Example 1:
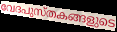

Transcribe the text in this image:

വേദപുസ്തകങ്ങളുടെ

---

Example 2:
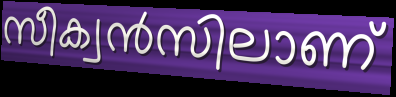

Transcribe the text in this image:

സീക്വൻസിലാണ്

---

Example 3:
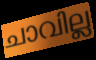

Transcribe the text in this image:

ചാവില്ല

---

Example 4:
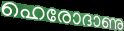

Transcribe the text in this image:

ഹെരോദാണു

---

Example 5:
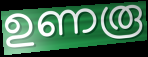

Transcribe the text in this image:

ഉണരൂ